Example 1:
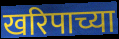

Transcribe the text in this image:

खरिपाच्या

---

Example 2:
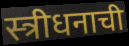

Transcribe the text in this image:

स्त्रीधनाची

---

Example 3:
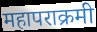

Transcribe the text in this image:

महापराक्रमी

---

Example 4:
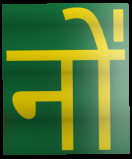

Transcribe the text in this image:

नो॑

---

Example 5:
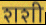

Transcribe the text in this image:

शशी